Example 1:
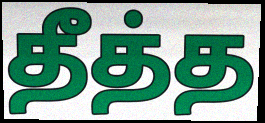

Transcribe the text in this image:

தீத்த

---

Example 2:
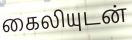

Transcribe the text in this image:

கைலியுடன்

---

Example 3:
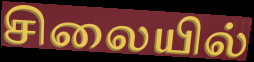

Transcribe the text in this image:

சிலையில்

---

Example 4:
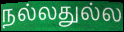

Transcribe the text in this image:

நல்லதுல்ல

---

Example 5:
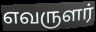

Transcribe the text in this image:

எவருளர்